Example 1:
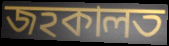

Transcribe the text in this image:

জহকালত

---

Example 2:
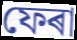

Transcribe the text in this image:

ফেৰা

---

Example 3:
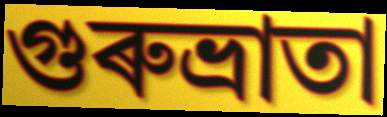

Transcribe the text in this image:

গুৰুভ্ৰাতা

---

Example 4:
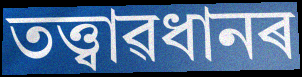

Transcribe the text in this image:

তত্ত্বাৱধানৰ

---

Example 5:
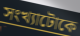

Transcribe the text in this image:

সংখ্যাটোকে